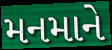
મનમાને